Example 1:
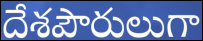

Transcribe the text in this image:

దేశపౌరులుగా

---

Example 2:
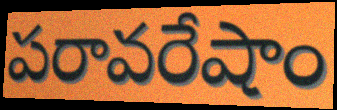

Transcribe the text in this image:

పరావరేషాం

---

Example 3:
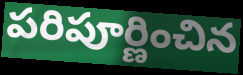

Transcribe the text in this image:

పరిపూర్ణించిన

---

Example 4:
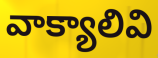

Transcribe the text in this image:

వాక్యాలివి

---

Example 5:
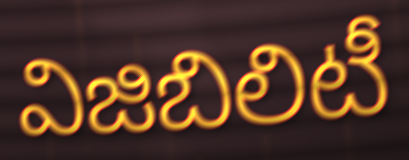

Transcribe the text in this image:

విజిబిలిటీ